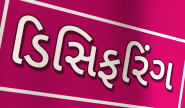
ડિસિફરિંગ